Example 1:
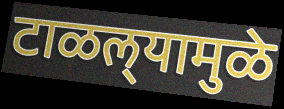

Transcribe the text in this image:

टाळल्यामुळे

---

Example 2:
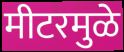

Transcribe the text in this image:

मीटरमुळे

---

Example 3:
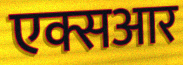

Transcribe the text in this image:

एक्सआर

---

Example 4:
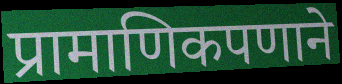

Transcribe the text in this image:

प्रामाणिकपणाने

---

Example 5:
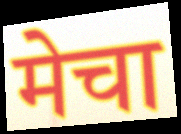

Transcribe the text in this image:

मेचा